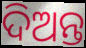
ଦିଅନ୍ତ